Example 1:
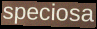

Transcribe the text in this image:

speciosa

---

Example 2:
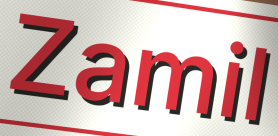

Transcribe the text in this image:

Zamil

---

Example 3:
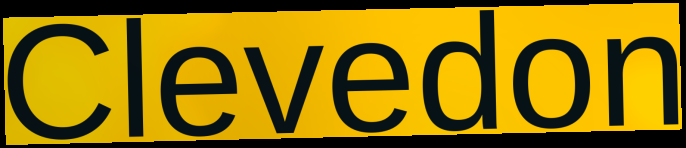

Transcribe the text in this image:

Clevedon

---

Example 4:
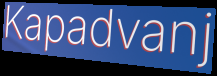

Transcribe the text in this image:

Kapadvanj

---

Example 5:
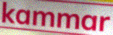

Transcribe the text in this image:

kammar